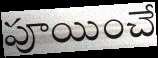
పూయించే